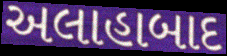
અલાહાબાદ